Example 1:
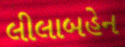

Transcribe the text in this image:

લીલાબહેન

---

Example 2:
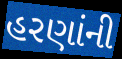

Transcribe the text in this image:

હરણાંની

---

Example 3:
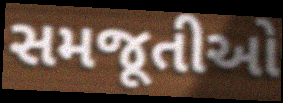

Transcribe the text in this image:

સમજૂતીઓ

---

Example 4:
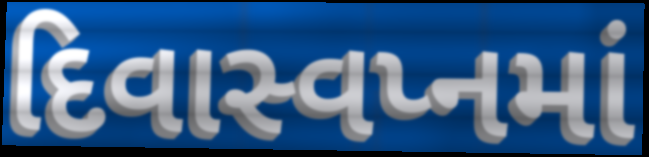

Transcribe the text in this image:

દિવાસ્વપ્નમાં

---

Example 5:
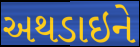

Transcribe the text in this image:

અથડાઇને